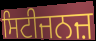
ਸਿਟੀਜਨਜ਼